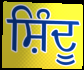
ਸ਼ਿੰਦੂ